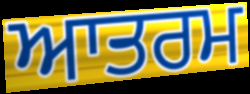
ਆਤਰਮ